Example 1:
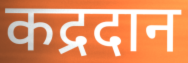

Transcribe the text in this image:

कद्रदान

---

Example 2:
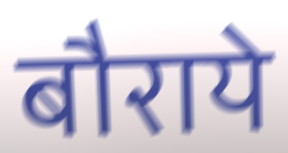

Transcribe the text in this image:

बौराये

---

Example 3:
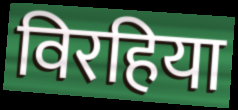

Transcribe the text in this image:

विरहिया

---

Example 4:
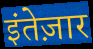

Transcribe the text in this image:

इंतेज़ार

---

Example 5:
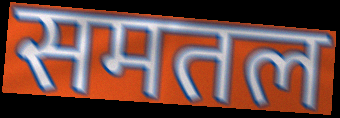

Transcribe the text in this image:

समतल